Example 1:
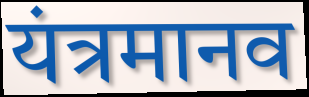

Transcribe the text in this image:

यंत्रमानव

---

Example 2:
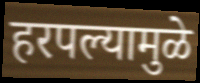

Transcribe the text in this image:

हरपल्यामुळे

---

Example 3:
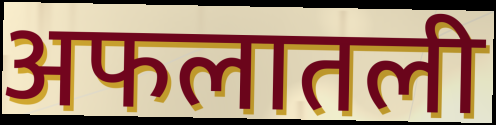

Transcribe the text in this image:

अफलातली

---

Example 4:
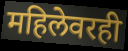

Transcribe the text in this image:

महिलेवरही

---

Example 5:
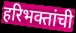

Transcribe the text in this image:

हरिभक्तांची